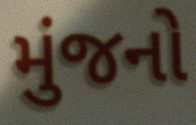
મુંજનો